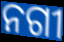
ନଗୀ